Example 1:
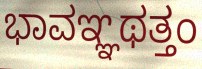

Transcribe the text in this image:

ಭಾವಞ್ಞಥತ್ತಂ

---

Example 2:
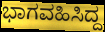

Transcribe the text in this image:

ಭಾಗವಹಿಸಿದ್ದ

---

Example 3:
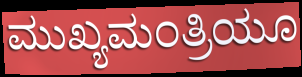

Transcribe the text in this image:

ಮುಖ್ಯಮಂತ್ರಿಯೂ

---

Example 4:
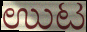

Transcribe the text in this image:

ಉುಟ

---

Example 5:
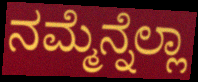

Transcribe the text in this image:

ನಮ್ಮೆನ್ನೆಲ್ಲಾ